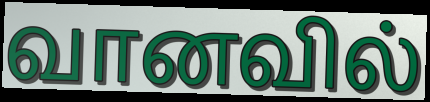
வானவில்